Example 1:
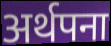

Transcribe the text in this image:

अर्थपना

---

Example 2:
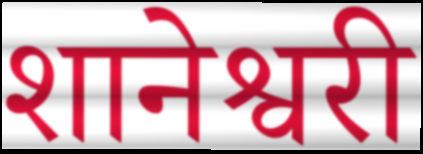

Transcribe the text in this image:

शानेश्वरी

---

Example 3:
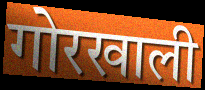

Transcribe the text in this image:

गोरखाली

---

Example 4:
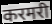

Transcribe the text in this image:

करमरी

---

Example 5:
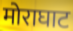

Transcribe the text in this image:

मोराघाट